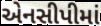
એનસીપીમાં